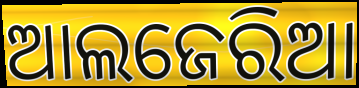
ଆଲଜେରିଆ